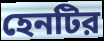
হেনটির